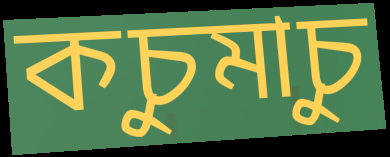
কচুমাচু